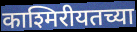
काश्मिरीयतच्या